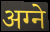
अग्ने